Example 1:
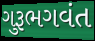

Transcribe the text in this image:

ગુરૂભગવંત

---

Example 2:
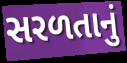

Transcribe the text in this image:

સરળતાનું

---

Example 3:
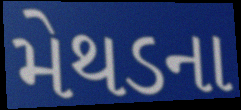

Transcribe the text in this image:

મેથડના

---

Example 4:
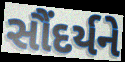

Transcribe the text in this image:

સૌંદર્યને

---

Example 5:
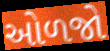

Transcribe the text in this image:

ઓળજો